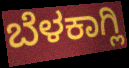
ಬೆಳಕಾಗ್ಲಿ